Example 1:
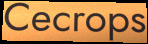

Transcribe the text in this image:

Cecrops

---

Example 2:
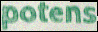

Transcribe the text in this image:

potens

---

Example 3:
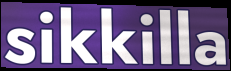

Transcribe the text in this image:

sikkilla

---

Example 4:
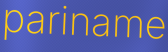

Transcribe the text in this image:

pariname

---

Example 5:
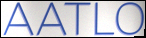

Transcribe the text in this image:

AATLO